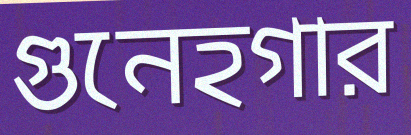
গুনেহগার